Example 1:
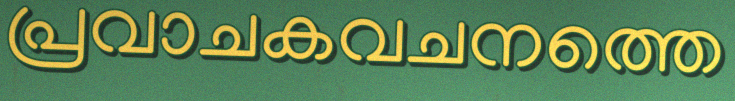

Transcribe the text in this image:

പ്രവാചകവചനത്തെ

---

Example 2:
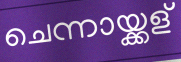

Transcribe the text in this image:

ചെന്നായ്ക്കള്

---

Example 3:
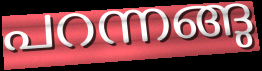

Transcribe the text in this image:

പറന്നങ്ങു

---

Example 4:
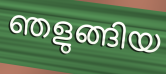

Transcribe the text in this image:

ഞളുങ്ങിയ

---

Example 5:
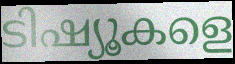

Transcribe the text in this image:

ടിഷ്യൂകളെ